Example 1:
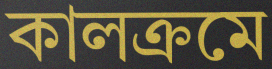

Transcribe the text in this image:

কালক্রমে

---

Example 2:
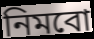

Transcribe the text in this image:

নিমবো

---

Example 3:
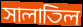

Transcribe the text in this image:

সালাতিল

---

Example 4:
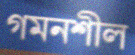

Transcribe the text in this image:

গমনশীল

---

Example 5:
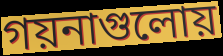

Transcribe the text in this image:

গয়নাগুলোয়